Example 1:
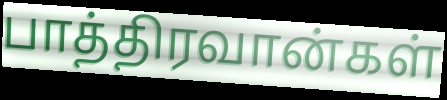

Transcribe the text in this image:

பாத்திரவான்கள்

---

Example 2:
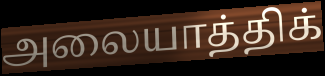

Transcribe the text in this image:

அலையாத்திக்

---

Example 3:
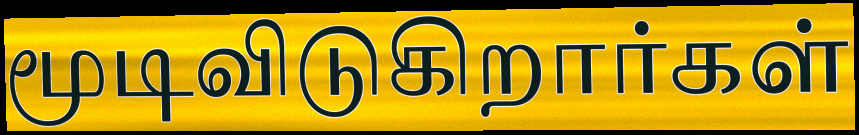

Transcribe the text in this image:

மூடிவிடுகிறார்கள்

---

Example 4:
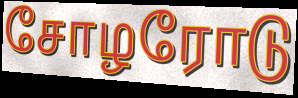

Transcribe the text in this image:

சோழரோடு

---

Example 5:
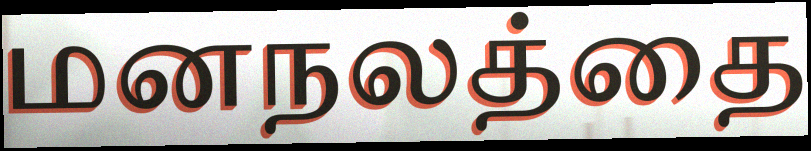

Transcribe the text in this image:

மனநலத்தை